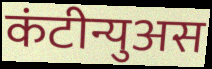
कंटीन्युअस